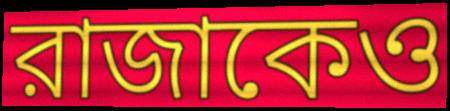
রাজাকেও